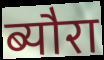
ब्यौरा